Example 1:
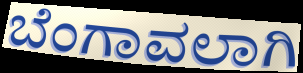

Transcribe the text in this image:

ಬೆಂಗಾವಲಾಗಿ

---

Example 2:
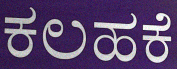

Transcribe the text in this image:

ಕಲಹಕೆ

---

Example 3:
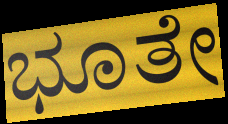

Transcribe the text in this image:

ಭೂತೇ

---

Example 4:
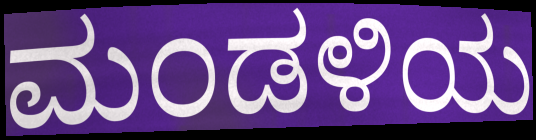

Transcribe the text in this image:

ಮಂಡಳಿಯ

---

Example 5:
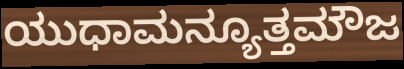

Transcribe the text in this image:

ಯುಧಾಮನ್ಯೂತ್ತಮೌಜ